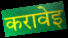
करावेइ